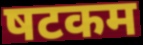
षटकम